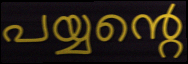
പയ്യന്റെ